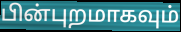
பின்புறமாகவும்